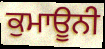
ਕੁਮਾਊਨੀ